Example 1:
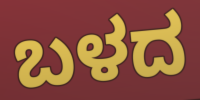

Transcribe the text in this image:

ಬಳದ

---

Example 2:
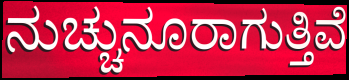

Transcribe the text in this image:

ನುಚ್ಚುನೂರಾಗುತ್ತಿವೆ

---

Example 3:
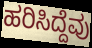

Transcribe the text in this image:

ಹರಿಸಿದ್ದೆವು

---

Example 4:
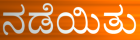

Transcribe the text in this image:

ನಡೆಯಿತು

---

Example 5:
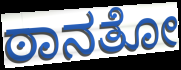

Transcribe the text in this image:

ಠಾನತೋ